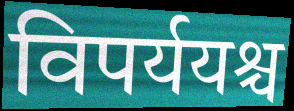
विपर्ययश्च